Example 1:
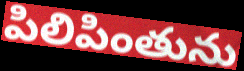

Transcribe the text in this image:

పిలిపింతును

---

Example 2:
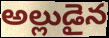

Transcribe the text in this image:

అల్లుడైన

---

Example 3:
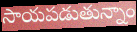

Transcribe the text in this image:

సాయపడుతున్నాం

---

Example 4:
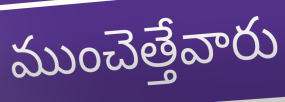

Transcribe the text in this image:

ముంచెత్తేవారు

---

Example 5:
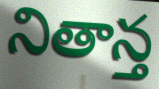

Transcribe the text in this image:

నితాన్త